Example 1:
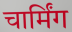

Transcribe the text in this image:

चार्मिंग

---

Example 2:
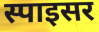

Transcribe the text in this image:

स्पाइसर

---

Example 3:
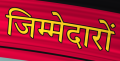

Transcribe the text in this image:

जिम्मेदारों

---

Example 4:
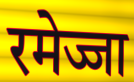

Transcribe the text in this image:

रमेज्जा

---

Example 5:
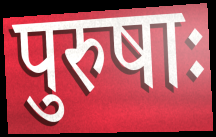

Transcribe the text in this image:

पुरुषाः